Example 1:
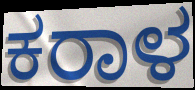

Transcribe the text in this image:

ಕರಾಳ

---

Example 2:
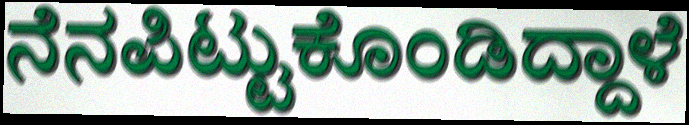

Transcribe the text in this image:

ನೆನಪಿಟ್ಟುಕೊಂಡಿದ್ದಾಳೆ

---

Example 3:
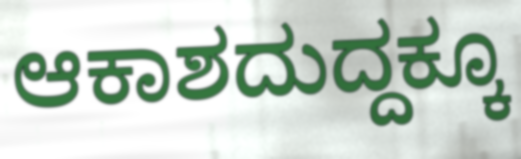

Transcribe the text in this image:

ಆಕಾಶದುದ್ದಕ್ಕೂ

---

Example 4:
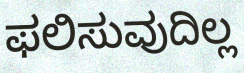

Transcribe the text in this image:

ಫಲಿಸುವುದಿಲ್ಲ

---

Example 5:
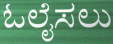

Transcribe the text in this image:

ಓಲೈಸಲು